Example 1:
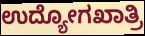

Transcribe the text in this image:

ಉದ್ಯೋಗಖಾತ್ರಿ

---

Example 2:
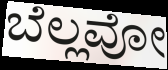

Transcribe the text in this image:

ಬೆಲ್ಲವೋ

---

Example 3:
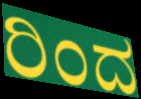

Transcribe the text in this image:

ರಿಂದ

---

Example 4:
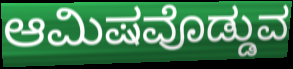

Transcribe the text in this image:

ಆಮಿಷವೊಡ್ಡುವ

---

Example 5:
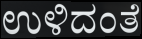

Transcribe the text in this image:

ಉಳಿದಂತೆ